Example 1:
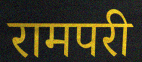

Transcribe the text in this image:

रामपरी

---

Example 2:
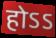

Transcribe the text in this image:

होऽऽ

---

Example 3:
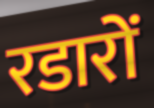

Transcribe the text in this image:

रडारों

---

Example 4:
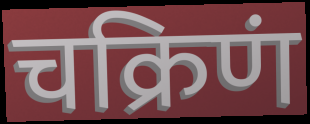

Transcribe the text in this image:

चक्रिणं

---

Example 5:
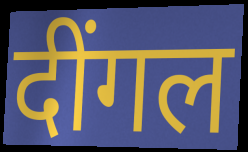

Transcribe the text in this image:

दींगल